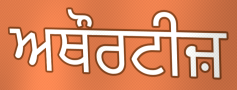
ਅਥੌਰਟੀਜ਼